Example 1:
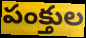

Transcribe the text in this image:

పంక్తుల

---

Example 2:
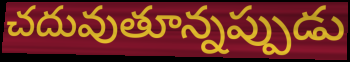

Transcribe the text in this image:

చదువుతూన్నప్పుడు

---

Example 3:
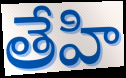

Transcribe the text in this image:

తేహి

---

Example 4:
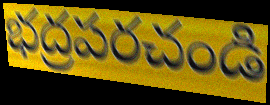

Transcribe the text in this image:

భద్రపరచండి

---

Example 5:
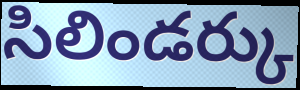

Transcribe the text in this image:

సిలిండర్కు